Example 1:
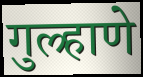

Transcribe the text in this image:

गुल्हाणे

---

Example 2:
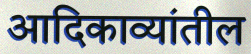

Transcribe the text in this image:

आदिकाव्यांतील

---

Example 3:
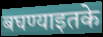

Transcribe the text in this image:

बघण्याइतके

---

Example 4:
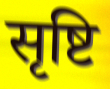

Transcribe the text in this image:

सृष्टि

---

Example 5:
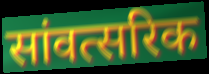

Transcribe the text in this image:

सांवत्सरिक